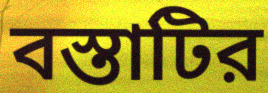
বস্তাটির